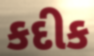
કદીક